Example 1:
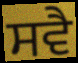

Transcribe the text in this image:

ਸਵੈ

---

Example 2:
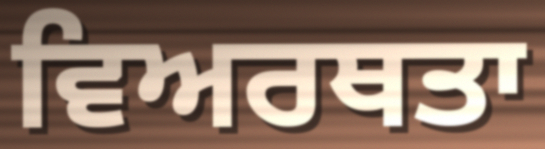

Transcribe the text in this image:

ਵਿਅਰਥਤਾ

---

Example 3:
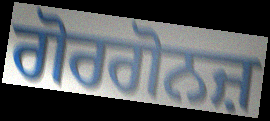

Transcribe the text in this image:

ਗੋਰਗੋਨਜ਼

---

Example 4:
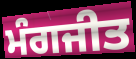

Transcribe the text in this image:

ਮੰਗਜੀਤ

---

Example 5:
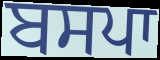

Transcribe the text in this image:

ਬਸਪਾ